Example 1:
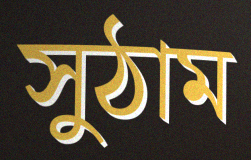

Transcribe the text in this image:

সুঠাম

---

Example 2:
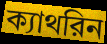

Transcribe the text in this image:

ক্যাথরিন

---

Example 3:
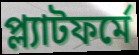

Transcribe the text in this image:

প্ল্যাটফর্মে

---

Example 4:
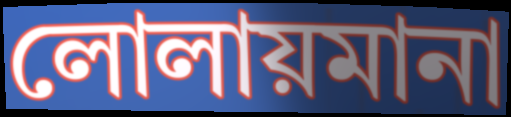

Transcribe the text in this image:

লোলায়মানা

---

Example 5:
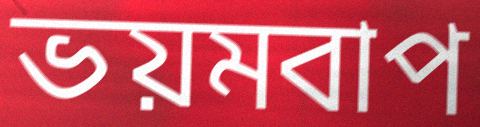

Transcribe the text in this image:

ভয়মবাপ